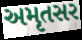
અમૃતસર